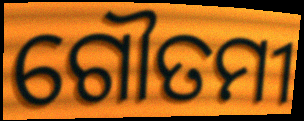
ଗୌତମୀ